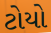
ટોયો